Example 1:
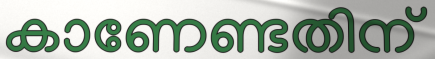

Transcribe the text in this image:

കാണേണ്ടതിന്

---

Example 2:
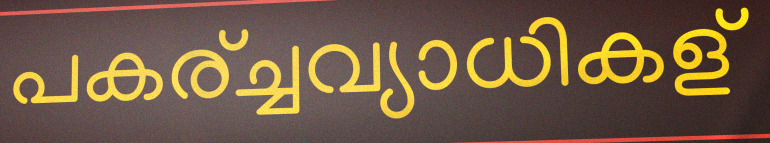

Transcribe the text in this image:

പകര്ച്ചവ്യാധികള്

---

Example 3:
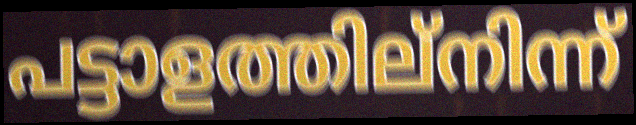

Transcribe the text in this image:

പട്ടാളത്തില്നിന്ന്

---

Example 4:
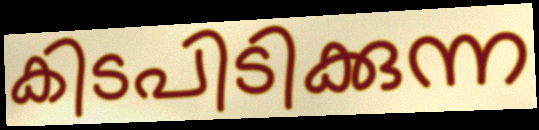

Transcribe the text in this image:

കിടപിടിക്കുന്ന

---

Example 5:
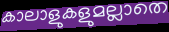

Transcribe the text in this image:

കാലാളുകളുമല്ലാതെ